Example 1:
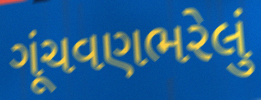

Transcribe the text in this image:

ગૂંચવણભરેલું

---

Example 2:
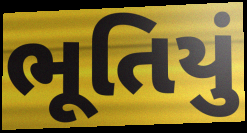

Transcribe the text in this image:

ભૂતિયું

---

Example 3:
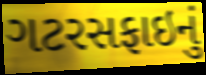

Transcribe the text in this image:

ગટરસફાઇનું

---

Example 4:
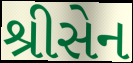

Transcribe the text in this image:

શ્રીસેન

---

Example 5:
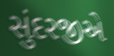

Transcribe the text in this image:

સુંદરજીએ